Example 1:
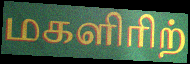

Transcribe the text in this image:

மகளிரிற்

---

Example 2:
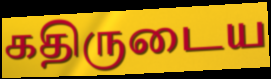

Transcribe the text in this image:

கதிருடைய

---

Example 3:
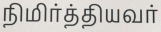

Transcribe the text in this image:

நிமிர்த்தியவர்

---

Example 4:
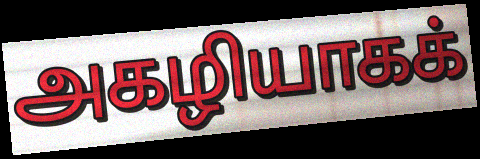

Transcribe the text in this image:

அகழியாகக்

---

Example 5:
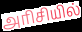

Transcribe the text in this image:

அரிசியில்